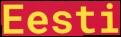
Eesti